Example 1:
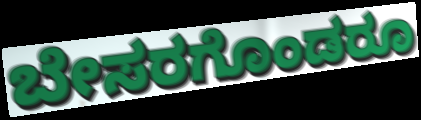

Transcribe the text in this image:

ಬೇಸರಗೊಂಡರೂ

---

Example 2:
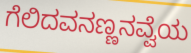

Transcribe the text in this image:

ಗೆಲಿದವನಣ್ಣನವ್ವೆಯ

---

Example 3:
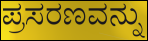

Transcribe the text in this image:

ಪ್ರಸರಣವನ್ನು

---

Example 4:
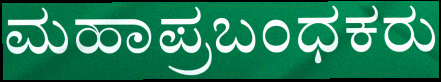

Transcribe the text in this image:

ಮಹಾಪ್ರಬಂಧಕರು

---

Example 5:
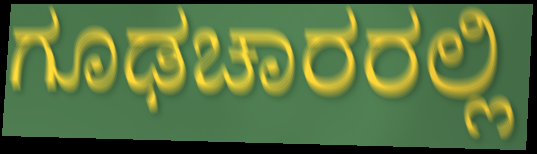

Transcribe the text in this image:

ಗೂಢಚಾರರಲ್ಲಿ